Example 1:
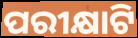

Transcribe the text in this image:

ପରୀକ୍ଷାଟି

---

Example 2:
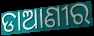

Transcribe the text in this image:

ଡାଆଣୀର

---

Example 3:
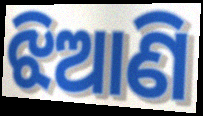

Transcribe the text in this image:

ଝିଆଣି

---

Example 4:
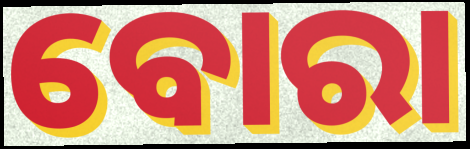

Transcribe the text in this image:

ବୋରା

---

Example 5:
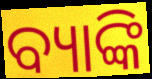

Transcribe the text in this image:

ବ୍ୟାଙ୍କି